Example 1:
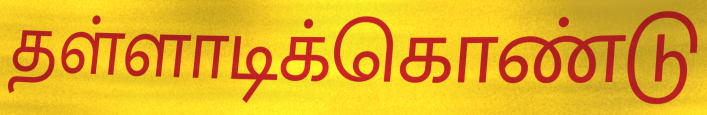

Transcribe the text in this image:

தள்ளாடிக்கொண்டு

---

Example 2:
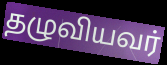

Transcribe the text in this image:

தழுவியவர்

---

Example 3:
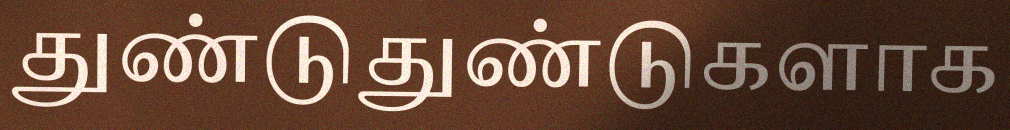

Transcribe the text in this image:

துண்டுதுண்டுகளாக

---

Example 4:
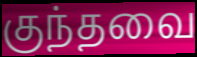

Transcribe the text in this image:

குந்தவை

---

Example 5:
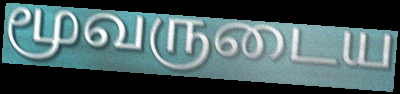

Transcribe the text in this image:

மூவருடைய